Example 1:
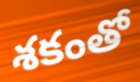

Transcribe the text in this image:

శకంతో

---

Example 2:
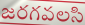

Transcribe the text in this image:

జరగవలసి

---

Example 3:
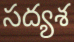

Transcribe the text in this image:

సద్యశ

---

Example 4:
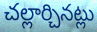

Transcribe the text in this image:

చల్లార్చినట్లు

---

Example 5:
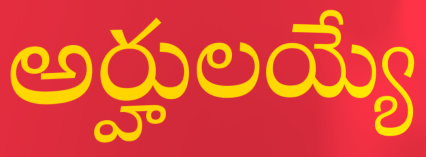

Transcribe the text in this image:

అర్హులయ్యే